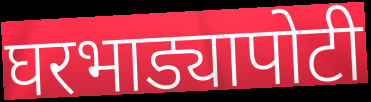
घरभाड्यापोटी